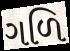
ગળિ